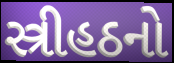
સ્ત્રીહઠનો